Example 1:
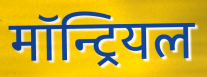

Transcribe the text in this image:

मॉन्ट्रियल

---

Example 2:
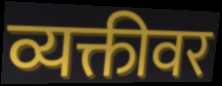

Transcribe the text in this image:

व्यक्तीवर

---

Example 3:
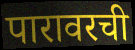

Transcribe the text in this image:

पारावरची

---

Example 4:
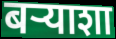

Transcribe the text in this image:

बऱ्याशा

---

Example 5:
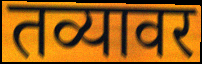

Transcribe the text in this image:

तव्यावर